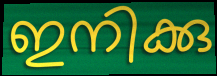
ഇനിക്കു